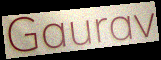
Gaurav